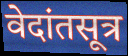
वेदांतसूत्र